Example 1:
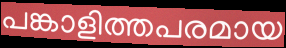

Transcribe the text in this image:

പങ്കാളിത്തപരമായ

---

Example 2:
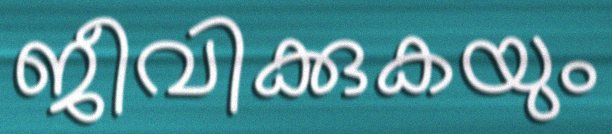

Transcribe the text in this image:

ജീവിക്കുകയും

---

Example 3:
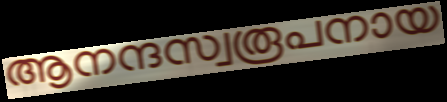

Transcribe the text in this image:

ആനന്ദസ്വരൂപനായ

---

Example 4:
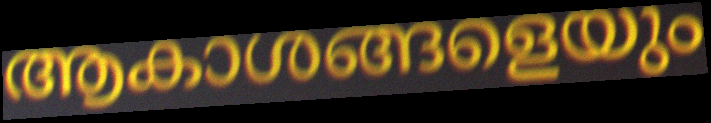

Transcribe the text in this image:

ആകാശങ്ങളെയും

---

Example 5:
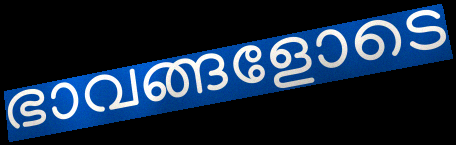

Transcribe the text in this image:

ഭാവങ്ങളോടെ